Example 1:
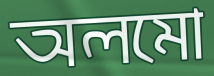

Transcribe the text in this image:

অলমো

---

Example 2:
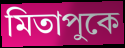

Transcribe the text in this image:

মিতাপুকে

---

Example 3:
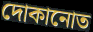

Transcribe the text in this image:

দোকানোত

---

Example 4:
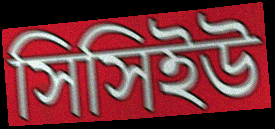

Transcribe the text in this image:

সিসিইউ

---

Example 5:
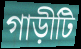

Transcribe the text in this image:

গাড়ীটি